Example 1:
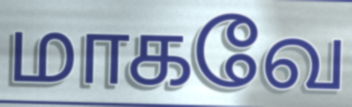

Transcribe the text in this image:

மாகவே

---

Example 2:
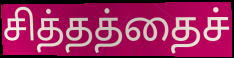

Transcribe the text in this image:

சித்தத்தைச்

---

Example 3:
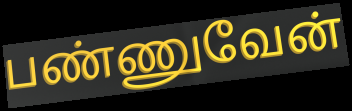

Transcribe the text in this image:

பண்ணுவேன்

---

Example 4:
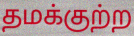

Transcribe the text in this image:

தமக்குற்ற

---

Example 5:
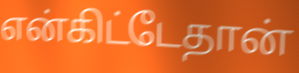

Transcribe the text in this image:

என்கிட்டேதான்